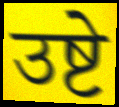
उष्टे